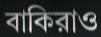
বাকিরাও